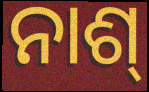
ନାଶ୍